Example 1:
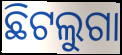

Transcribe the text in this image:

ଛିଟଲୁଗା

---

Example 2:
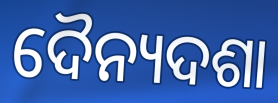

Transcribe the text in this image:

ଦୈନ୍ୟଦଶା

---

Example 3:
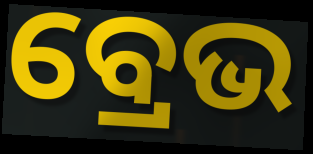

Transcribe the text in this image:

ବ୍ରେଭ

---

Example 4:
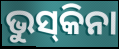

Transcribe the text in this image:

ଭୁସ୍‌କିନା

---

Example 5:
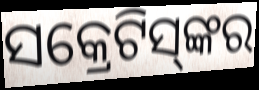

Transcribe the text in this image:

ସକ୍ରେଟିସ୍‌ଙ୍କର